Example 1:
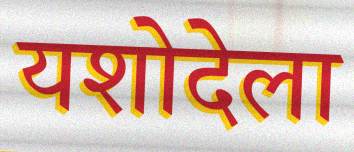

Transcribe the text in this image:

यशोदेला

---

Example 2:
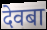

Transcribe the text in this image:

देवबा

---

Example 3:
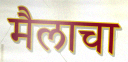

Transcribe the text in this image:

मैलाचा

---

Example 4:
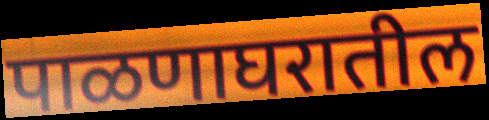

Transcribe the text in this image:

पाळणाघरातील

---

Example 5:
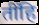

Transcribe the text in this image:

तींहि